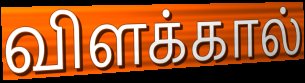
விளக்கால்